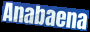
Anabaena